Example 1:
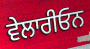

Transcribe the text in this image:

ਵੇਲਾਰੀਓਨ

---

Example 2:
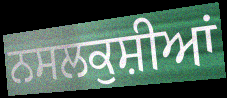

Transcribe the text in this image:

ਨਸਲਕੁਸ਼ੀਆਂ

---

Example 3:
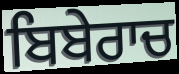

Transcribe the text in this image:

ਬਿਬੇਰਾਚ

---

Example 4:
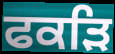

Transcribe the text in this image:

ਫਕੜਿ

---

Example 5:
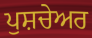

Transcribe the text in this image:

ਪੁਸ਼ਚੇਅਰ